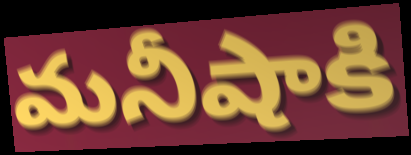
మనీషాకి